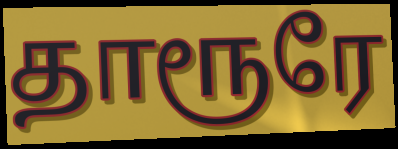
தாரூரே